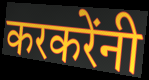
करकरेंनी